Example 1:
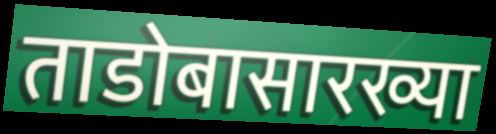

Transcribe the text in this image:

ताडोबासारख्या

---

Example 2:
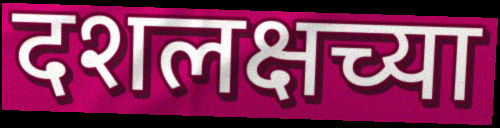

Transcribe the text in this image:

दशलक्षच्या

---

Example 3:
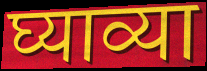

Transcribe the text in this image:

घ्याव्या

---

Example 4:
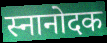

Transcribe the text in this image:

स्नानोदक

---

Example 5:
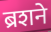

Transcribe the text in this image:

ब्रशने